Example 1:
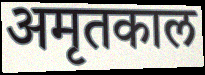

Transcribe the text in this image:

अमृतकाल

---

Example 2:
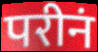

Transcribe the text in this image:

परीनं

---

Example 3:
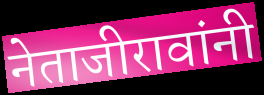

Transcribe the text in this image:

नेताजीरावांनी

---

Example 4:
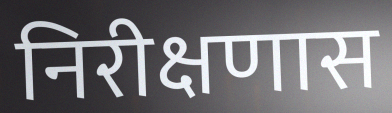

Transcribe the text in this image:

निरीक्षणास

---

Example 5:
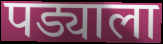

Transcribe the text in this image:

पड्याला